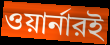
ওয়ার্নারই